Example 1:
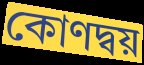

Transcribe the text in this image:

কোণদ্বয়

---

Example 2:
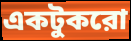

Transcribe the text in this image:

একটুকরো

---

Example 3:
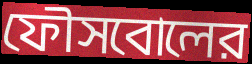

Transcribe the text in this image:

ফৌসবোলের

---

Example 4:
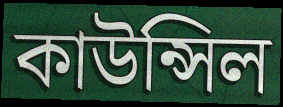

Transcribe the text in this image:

কাউন্সিল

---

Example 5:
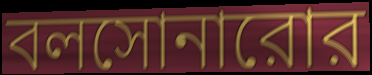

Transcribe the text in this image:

বলসোনারোর